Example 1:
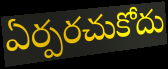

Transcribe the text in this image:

ఏర్పరచుకోదు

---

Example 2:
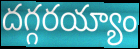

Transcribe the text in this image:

దగ్గరయ్యాం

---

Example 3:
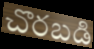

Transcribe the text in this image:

చొరబడి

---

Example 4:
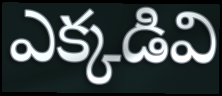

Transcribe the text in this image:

ఎక్కడివి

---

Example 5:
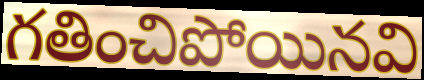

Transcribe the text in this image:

గతించిపోయినవి